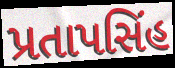
પ્રતાપસિંહ